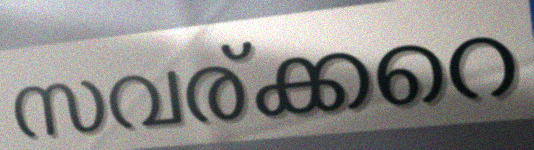
സവര്ക്കറെ